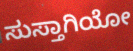
ಸುಸ್ತಾಗಿಯೋ